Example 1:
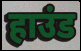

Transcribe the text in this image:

हाउंड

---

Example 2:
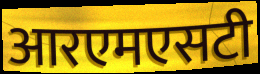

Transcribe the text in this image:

आरएमएसटी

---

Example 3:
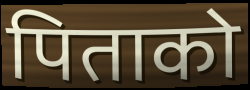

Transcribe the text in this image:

पिताको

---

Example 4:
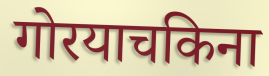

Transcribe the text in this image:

गोरयाचकिना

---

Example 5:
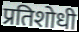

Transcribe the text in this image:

प्रतिशोधी